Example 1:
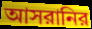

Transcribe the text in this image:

আসরানির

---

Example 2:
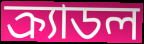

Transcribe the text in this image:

ক্র্যাডল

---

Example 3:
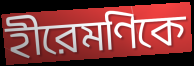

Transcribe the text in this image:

হীরেমণিকে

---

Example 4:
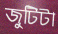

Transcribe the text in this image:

জুটিটা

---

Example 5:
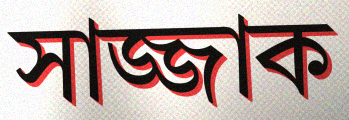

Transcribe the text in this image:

সাজ্জাক